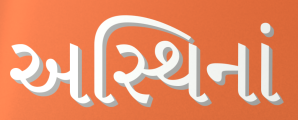
અસ્થિનાં